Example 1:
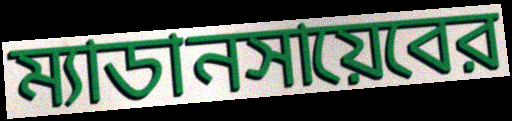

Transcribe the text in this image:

ম্যাডানসায়েবের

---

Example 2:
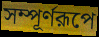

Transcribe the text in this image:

সম্পূর্ণরূপে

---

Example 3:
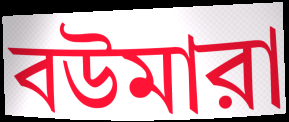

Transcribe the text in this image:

বউমারা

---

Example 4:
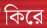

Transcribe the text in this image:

কিরে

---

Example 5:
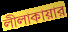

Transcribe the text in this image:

লীলাকায়ার